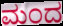
ಮಂದ